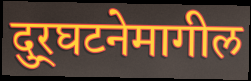
दुर्घटनेमागील